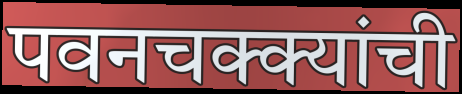
पवनचक्क्यांची